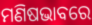
ମଣିଷଭାବରେ